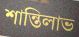
শান্তিলাভ